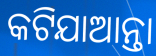
କଟିଯାଆନ୍ତା